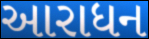
આરાધન